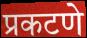
प्रकटणे